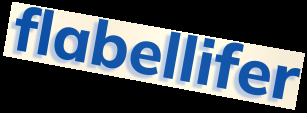
flabellifer